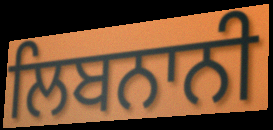
ਲਿਬਨਾਨੀ